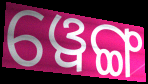
ୱେଙ୍ଗ